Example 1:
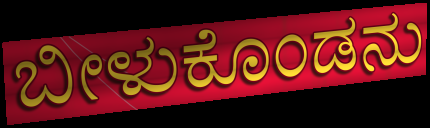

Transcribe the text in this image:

ಬೀಳುಕೊಂಡನು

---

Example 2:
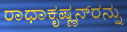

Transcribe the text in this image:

ರಾಧಾಕೃಷ್ಣನ್‌ರನ್ನು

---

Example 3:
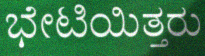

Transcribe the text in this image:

ಭೇಟಿಯಿತ್ತರು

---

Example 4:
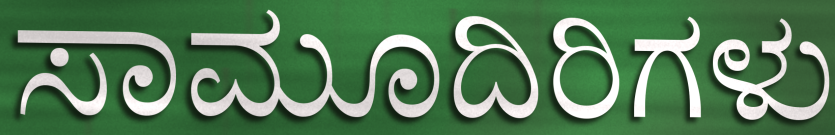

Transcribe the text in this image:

ಸಾಮೂದಿರಿಗಳು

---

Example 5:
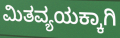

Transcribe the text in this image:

ಮಿತವ್ಯಯಕ್ಕಾಗಿ